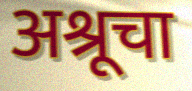
अश्रूचा